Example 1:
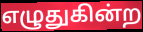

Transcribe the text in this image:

எழுதுகின்ற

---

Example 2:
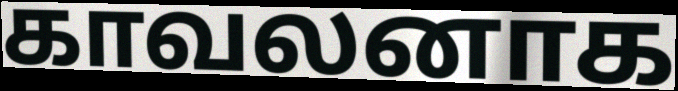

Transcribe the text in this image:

காவலனாக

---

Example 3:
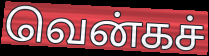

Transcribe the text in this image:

வென்கச்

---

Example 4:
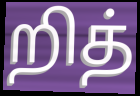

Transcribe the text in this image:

றித்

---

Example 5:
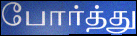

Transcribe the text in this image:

போர்த்து